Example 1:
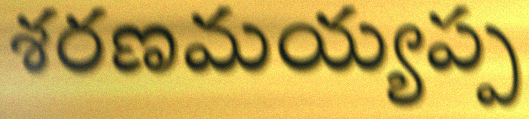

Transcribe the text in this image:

శరణమయ్యప్ప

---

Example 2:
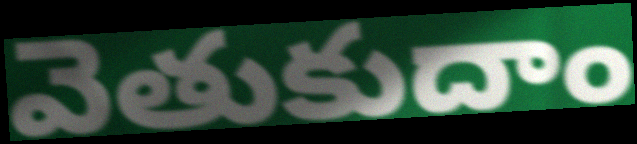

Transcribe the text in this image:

వెతుకుదాం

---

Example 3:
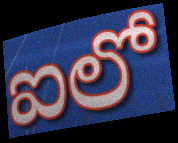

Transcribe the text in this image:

ఐలో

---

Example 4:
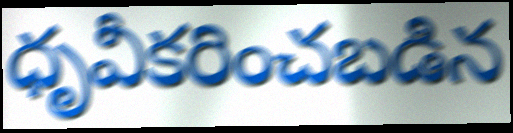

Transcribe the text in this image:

ధృవీకరించబడిన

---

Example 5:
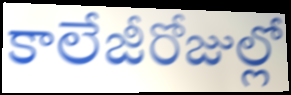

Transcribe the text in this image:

కాలేజీరోజుల్లో